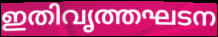
ഇതിവൃത്തഘടന